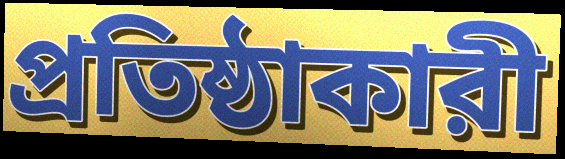
প্রতিষ্ঠাকারী